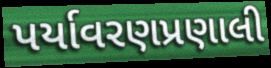
પર્યાવરણપ્રણાલી